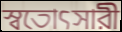
স্বতোৎসারী